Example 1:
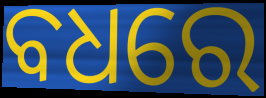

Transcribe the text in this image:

ବଧରେ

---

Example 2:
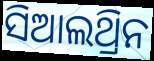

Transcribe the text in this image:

ସିଆଲଥ୍ରିନ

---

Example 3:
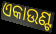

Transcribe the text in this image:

ଏକାଉଣ୍ଟ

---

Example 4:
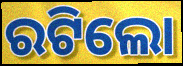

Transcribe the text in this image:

ରଟିଲୋ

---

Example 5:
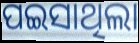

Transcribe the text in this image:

ପଇସାଥିଲା